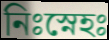
নিঃস্নেহঃ